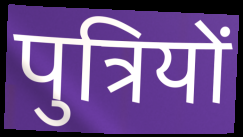
पुत्रियों